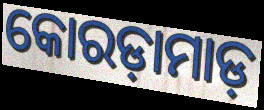
କୋରଡ଼ାମାଡ଼